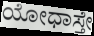
ಯೋಧಾಸ್ತೇ